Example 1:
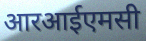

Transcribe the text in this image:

आरआईएमसी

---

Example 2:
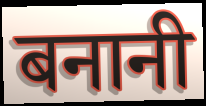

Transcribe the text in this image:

बनानी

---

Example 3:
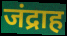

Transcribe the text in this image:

जंद्राह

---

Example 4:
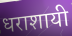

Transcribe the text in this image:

धराशायी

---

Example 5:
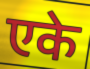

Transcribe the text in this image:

एके